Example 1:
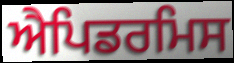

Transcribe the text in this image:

ਐਪਿਡਰਮਿਸ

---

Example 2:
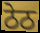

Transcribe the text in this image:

ਠੇਠ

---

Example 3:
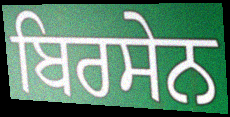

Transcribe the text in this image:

ਬਿਰਸੇਨ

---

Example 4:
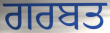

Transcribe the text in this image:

ਗਰਬਤ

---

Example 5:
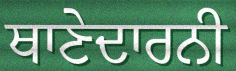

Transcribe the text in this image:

ਥਾਣੇਦਾਰਨੀ